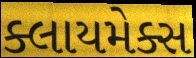
ક્લાયમેક્સ